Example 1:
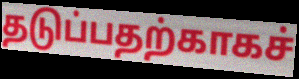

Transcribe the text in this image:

தடுப்பதற்காகச்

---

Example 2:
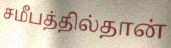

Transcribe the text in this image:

சமீபத்தில்தான்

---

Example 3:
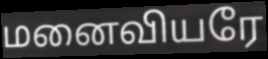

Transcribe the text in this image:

மனைவியரே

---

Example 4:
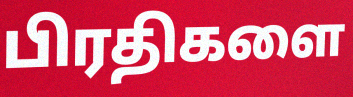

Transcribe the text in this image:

பிரதிகளை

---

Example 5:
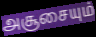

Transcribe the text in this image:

அசூசையும்